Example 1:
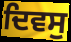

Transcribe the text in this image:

ਦਿਵਸੁ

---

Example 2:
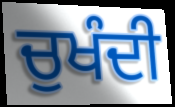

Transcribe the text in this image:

ਚੁਖੰਦੀ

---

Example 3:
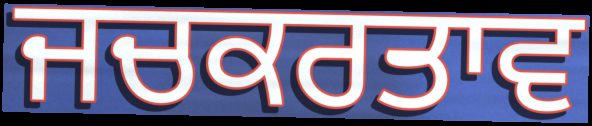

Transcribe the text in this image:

ਜਚਕਰਤਾਵ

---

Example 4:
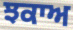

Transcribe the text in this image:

ਝਕਾਅ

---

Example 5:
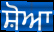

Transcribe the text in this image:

ਸ਼ੋਆ